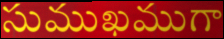
సుముఖముగా